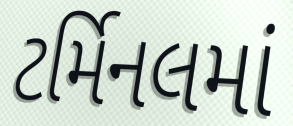
ટર્મિનલમાં